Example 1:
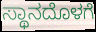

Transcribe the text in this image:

ಸ್ಥಾನದೊಳಗೆ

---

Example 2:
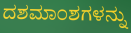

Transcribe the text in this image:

ದಶಮಾಂಶಗಳನ್ನು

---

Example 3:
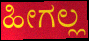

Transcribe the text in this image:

ಹೀಗಲ್ಲ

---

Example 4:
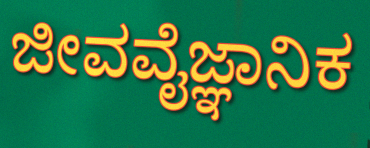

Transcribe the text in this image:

ಜೀವವೈಜ್ಞಾನಿಕ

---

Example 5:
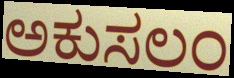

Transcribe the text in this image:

ಅಕುಸಲಂ